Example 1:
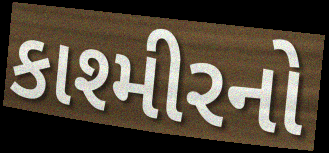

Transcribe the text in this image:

કાશ્મીરનો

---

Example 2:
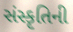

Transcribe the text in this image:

સંસ્કૃતિની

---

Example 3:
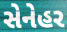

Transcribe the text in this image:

સેનેહર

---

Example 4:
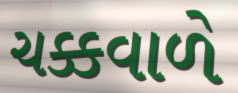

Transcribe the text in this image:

ચક્કવાળે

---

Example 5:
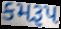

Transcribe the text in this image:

કમરૂપ